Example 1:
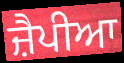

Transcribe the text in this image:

ਜ਼ੈਪੀਆ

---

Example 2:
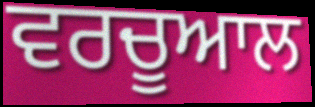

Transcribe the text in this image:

ਵਰਚੂਆਲ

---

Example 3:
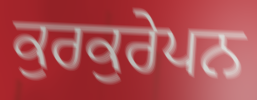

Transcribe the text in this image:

ਕੁਰਕੁਰੇਪਨ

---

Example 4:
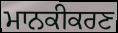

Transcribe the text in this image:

ਮਾਨਕੀਕਰਣ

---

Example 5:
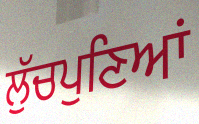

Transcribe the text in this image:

ਲੁੱਚਪੁਣਿਆਂ